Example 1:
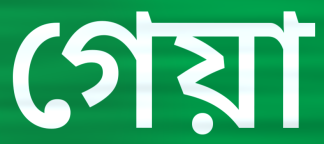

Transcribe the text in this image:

গেয়া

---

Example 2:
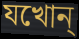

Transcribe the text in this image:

যখোন্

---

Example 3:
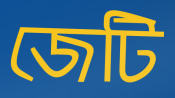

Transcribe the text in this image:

জেটি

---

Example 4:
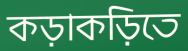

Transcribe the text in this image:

কড়াকড়িতে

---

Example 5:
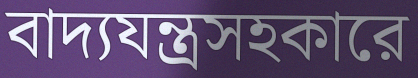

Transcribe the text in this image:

বাদ্যযন্ত্রসহকারে